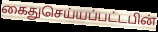
கைதுசெய்யப்பட்டபின்